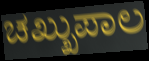
ಚಖ್ಖುಪಾಲ